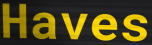
Haves